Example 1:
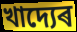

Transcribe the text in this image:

খাদ্যেৰ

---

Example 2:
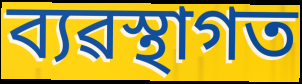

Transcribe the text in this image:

ব্যৱস্থাগত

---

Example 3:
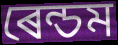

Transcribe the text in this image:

ৰেন্ডম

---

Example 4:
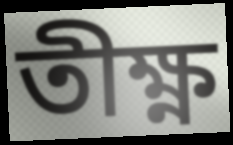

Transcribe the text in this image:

তীক্ষ্ণ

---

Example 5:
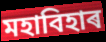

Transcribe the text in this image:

মহাবিহাৰ